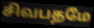
சிவபதமே